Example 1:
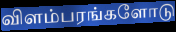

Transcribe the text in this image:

விளம்பரங்களோடு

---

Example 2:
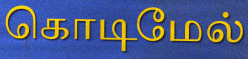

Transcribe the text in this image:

கொடிமேல்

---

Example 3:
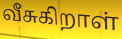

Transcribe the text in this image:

வீசுகிறாள்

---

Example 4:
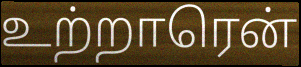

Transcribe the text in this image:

உற்றாரென்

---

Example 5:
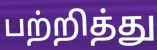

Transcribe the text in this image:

பற்றித்து